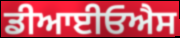
ਡੀਆਈਓਐਸ